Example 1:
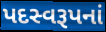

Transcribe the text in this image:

પદસ્વરૂપનાં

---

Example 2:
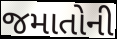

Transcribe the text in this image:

જમાતોની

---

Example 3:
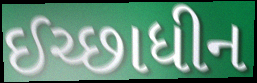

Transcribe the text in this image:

ઈચ્છાધીન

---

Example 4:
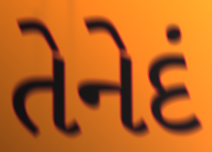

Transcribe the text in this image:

તેનેદં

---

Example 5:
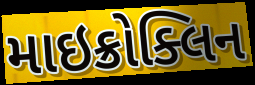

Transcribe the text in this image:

માઇક્રોક્લિન